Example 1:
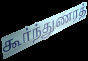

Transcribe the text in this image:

கூர்ந்துணரத்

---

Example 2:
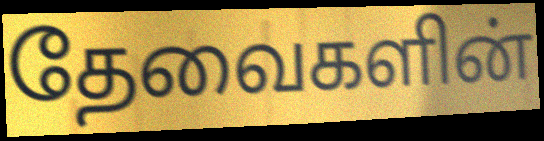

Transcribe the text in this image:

தேவைகளின்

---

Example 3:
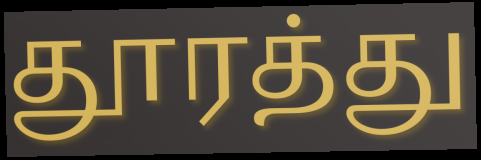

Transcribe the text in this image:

தூரத்து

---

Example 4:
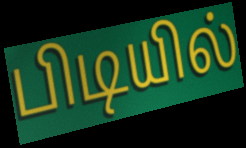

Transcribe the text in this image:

பிடியில்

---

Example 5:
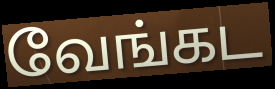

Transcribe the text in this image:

வேங்கட